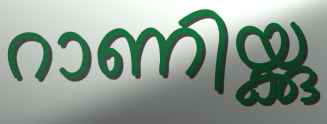
റാണിയ്ക്കു